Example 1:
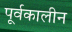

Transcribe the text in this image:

पूर्वकालीन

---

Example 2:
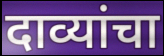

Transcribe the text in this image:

दाव्यांचा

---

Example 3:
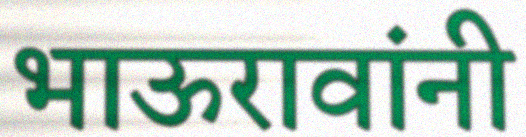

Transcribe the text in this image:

भाऊरावांनी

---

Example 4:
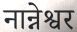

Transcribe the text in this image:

नान्नेश्वर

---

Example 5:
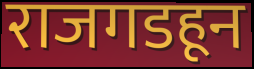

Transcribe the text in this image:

राजगडहून